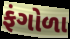
ફંગોળા